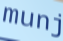
munj